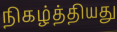
நிகழ்த்தியது